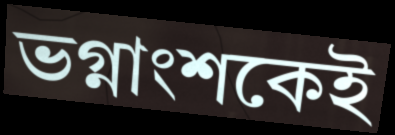
ভগ্নাংশকেই